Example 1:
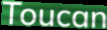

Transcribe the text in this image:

Toucan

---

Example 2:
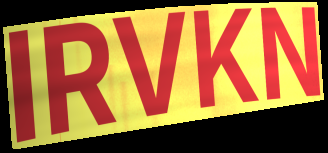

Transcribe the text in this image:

IRVKN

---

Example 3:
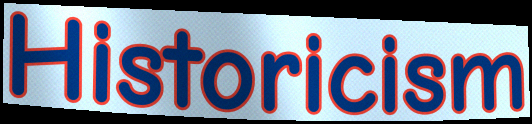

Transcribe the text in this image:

Historicism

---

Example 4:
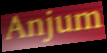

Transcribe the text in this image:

Anjum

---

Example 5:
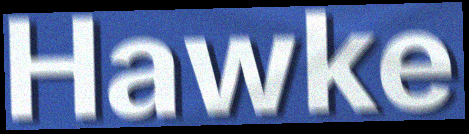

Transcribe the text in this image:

Hawke